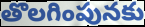
తొలగింపునకు